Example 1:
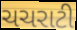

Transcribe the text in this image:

ચચરાટી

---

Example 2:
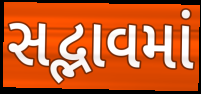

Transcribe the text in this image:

સદ્ભાવમાં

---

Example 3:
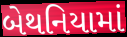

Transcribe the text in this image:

બેથનિયામાં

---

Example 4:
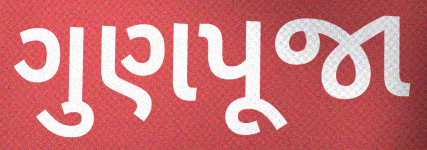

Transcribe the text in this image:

ગુણપૂજા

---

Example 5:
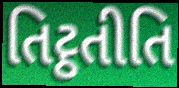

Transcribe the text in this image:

તિટ્ઠતીતિ